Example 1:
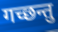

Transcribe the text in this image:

गच्छन्तु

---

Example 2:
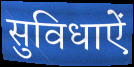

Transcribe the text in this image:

सुविधाऐं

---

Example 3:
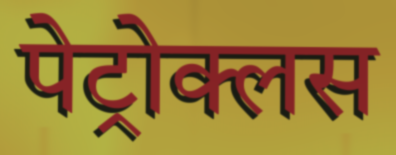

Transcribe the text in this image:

पेट्रोक्लस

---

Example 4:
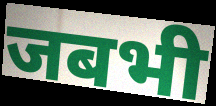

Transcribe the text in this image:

जबभी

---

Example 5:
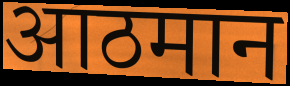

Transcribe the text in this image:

आठमान